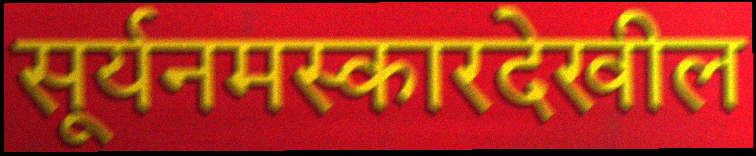
सूर्यनमस्कारदेखील